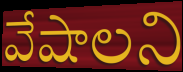
వేషాలని